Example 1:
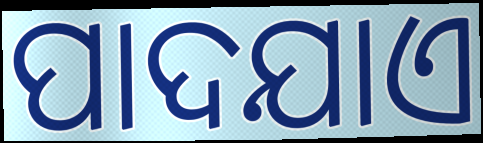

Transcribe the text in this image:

ପାଦଯାଏ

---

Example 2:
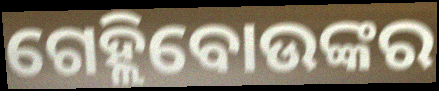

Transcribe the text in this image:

ଗେହ୍ଲିବୋଉଙ୍କର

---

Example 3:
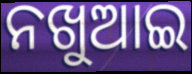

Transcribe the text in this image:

ନଖୁଆଇ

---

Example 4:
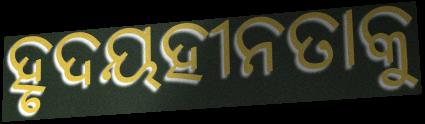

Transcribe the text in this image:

ହୃଦୟହୀନତାକୁ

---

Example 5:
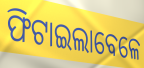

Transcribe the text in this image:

ଫିଟାଇଲାବେଳେ